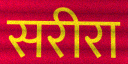
सरीरा